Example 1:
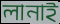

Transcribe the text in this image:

লানাই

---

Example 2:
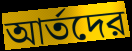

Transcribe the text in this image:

আর্তদের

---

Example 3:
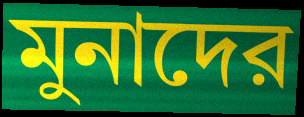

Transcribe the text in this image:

মুনাদের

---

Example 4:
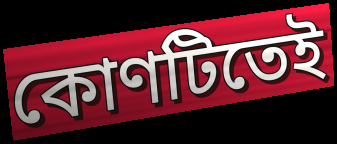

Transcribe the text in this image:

কোণটিতেই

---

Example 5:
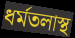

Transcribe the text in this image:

ধর্মতলাস্থ